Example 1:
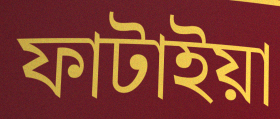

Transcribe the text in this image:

ফাটাইয়া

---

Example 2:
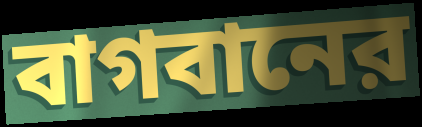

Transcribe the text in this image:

বাগবানের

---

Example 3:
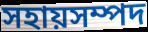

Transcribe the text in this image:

সহায়সম্পদ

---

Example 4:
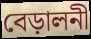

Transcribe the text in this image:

বেড়ালনী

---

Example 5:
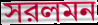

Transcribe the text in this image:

সরলমন